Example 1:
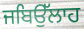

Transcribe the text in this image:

ਜਬਿਉੱਲਾਹ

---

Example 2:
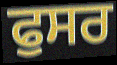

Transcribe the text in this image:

ਫੁਸਰ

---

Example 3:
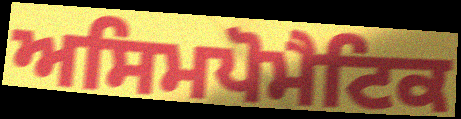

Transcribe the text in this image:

ਅਸਿਮਪੋਮੈਟਿਕ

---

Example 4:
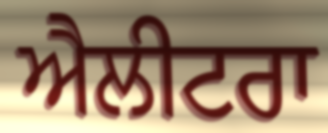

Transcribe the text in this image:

ਐਲੀਟਰਾ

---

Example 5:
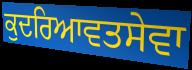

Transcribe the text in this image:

ਕੁਦਰਿਆਵਤਸੇਵਾ